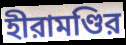
হীরামণ্ডির